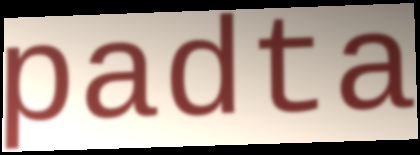
padta